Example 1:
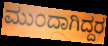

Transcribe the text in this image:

ಮುಂದಾಗಿದ್ದರ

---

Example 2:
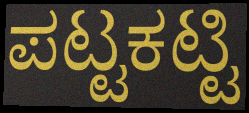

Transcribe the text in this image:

ಪಟ್ಟಕಟ್ಟಿ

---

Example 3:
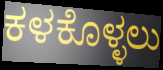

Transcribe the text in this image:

ಕಳಕೊಳ್ಳಲು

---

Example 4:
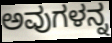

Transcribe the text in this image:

ಅವುಗಳನ್ನ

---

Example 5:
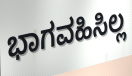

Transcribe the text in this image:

ಭಾಗವಹಿಸಿಲ್ಲ